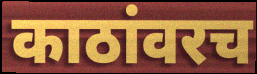
काठांवरच